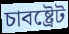
চাবষ্ট্ৰেট